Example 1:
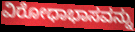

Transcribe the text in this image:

ವಿರೋಧಾಭಾಸವನ್ನು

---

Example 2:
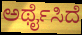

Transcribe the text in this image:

ಅರ್ಥೈಸಿದೆ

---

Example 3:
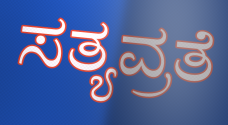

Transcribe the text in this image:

ಸತ್ಯವ್ರತೆ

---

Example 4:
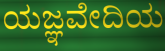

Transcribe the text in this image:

ಯಜ್ಞವೇದಿಯ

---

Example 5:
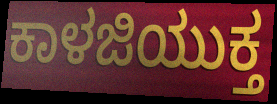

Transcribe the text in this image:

ಕಾಳಜಿಯುಕ್ತ